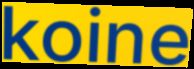
koine